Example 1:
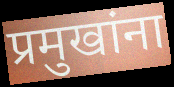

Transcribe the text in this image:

प्रमुखांना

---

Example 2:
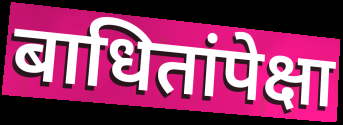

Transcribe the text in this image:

बाधितांपेक्षा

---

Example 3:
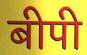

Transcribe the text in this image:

बीपी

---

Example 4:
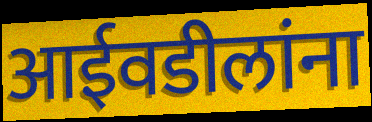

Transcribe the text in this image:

आईवडीलांना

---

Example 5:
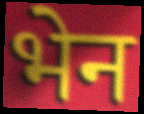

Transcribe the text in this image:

भेन